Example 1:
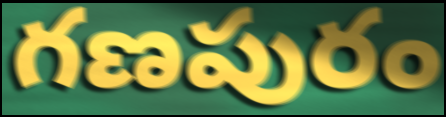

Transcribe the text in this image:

గణపురం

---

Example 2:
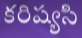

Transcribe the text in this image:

కరిష్యసి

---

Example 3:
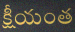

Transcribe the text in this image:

క్షీయంత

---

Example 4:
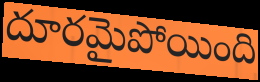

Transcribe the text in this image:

దూరమైపోయింది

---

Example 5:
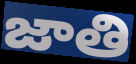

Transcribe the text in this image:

జాతి